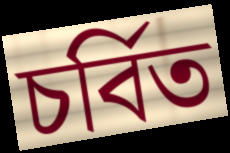
চৰ্বিত